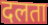
दलता